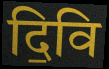
दि॒वि